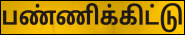
பண்ணிக்கிட்டு